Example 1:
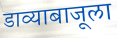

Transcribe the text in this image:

डाव्याबाजूला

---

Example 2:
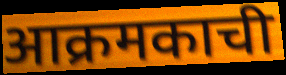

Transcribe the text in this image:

आक्रमकाची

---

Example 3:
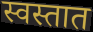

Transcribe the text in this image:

स्वस्तात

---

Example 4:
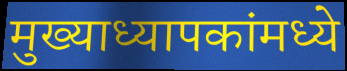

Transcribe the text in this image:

मुख्याध्यापकांमध्ये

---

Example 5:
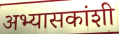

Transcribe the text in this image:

अभ्यासकांशी